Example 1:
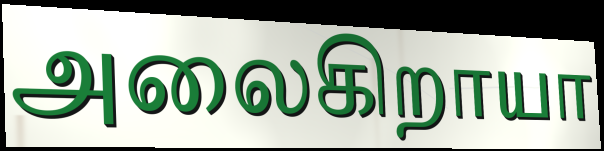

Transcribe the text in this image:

அலைகிறாயா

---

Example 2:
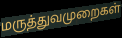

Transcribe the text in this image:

மருத்துவமுறைகள்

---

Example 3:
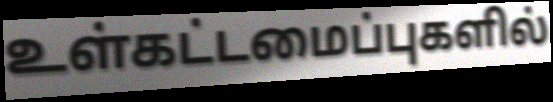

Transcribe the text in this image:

உள்கட்டமைப்புகளில்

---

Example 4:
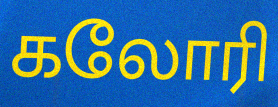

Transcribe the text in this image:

கலோரி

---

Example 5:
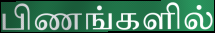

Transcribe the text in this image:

பிணங்களில்